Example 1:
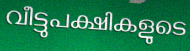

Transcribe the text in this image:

വീട്ടുപക്ഷികളുടെ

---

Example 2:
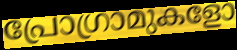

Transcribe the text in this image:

പ്രോഗ്രാമുകളോ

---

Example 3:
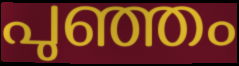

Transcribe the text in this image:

പുഞ്ഞം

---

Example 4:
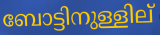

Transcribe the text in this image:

ബോട്ടിനുള്ളില്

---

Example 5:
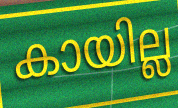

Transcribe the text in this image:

കായില്ല